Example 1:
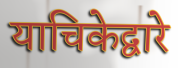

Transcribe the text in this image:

याचिकेद्वारे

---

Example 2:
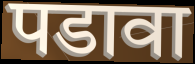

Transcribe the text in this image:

पडावा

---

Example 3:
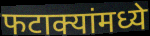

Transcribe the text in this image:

फटाक्यांमध्ये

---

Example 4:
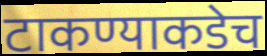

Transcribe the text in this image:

टाकण्याकडेच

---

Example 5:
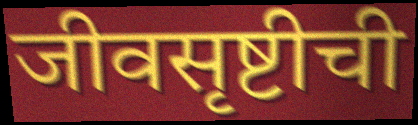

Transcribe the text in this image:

जीवसृष्टीची